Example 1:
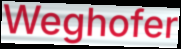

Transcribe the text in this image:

Weghofer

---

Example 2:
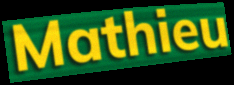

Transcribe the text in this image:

Mathieu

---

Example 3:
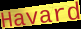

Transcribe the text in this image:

Havard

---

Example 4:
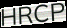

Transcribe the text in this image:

HRCP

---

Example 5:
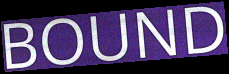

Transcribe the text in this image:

BOUND